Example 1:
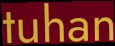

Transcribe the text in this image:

tuhan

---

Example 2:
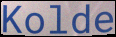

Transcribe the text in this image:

Kolde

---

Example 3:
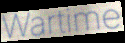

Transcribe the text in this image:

Wartime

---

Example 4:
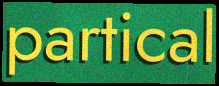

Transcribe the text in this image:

partical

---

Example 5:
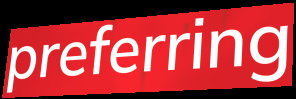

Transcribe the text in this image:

preferring